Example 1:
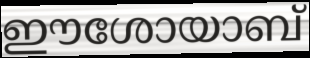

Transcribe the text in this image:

ഈശോയാബ്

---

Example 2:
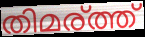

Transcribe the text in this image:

തിമര്ത്ത്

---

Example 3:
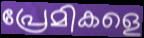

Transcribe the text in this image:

പ്രേമികളെ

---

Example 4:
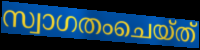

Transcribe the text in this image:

സ്വാഗതംചെയ്ത്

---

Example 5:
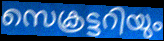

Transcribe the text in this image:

സെക്രട്ടറിയും